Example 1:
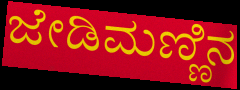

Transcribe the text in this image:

ಜೇಡಿಮಣ್ಣಿನ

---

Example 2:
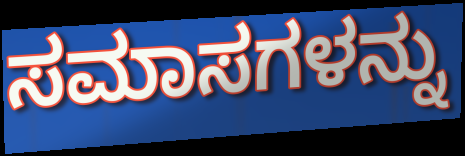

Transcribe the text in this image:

ಸಮಾಸಗಳನ್ನು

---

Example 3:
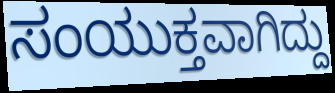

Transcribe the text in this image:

ಸಂಯುಕ್ತವಾಗಿದ್ದು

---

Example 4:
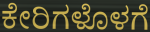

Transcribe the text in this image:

ಕೇರಿಗಳೊಳಗೆ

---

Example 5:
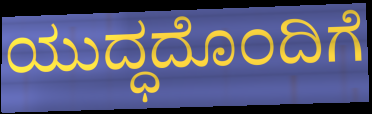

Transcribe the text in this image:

ಯುದ್ಧದೊಂದಿಗೆ